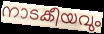
നാടകീയവും